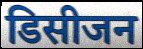
डिसीजन